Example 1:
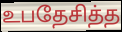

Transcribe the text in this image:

உபதேசித்த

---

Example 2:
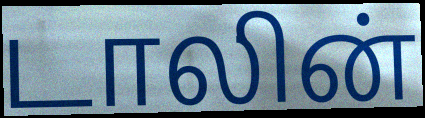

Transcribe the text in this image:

டாலின்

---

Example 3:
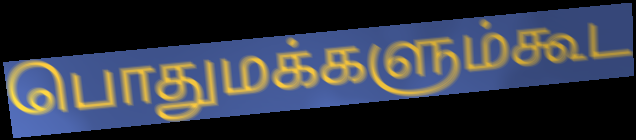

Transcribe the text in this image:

பொதுமக்களும்கூட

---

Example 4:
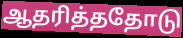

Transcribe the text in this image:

ஆதரித்ததோடு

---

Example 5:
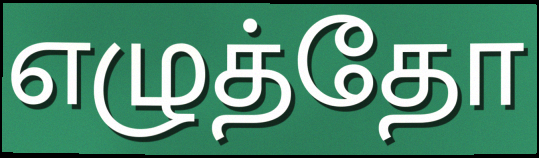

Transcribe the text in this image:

எழுத்தோ